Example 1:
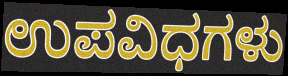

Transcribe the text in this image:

ಉಪವಿಧಗಳು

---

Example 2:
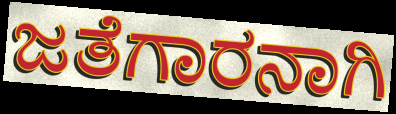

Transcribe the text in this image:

ಜತೆಗಾರನಾಗಿ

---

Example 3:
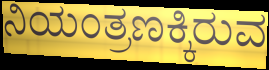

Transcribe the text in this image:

ನಿಯಂತ್ರಣಕ್ಕಿರುವ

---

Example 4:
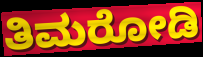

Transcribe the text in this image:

ತಿಮರೋಡಿ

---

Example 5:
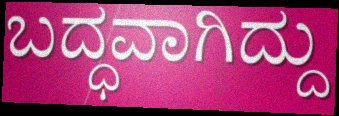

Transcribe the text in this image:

ಬದ್ಧವಾಗಿದ್ದು